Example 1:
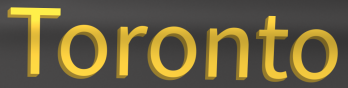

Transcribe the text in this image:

Toronto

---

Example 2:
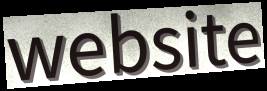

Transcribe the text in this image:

website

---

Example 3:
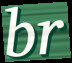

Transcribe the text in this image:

br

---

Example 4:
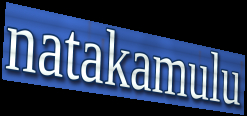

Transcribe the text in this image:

natakamulu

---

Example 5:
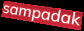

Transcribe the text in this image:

sampadak